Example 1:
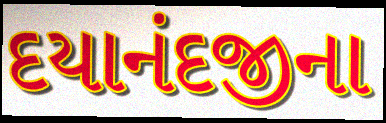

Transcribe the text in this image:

દયાનંદજીના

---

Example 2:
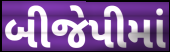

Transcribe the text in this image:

બીજેપીમાં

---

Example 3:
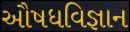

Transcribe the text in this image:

ઔષધવિજ્ઞાન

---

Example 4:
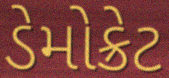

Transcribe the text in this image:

ડેમોક્રેટ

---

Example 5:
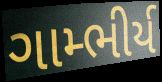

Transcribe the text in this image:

ગામ્ભીર્ય